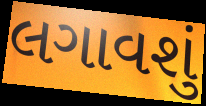
લગાવશું